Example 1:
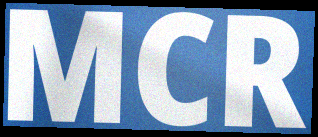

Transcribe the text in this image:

MCR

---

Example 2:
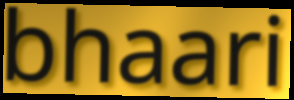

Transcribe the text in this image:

bhaari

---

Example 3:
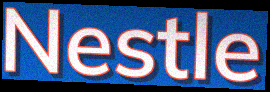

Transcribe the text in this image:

Nestle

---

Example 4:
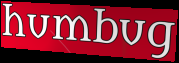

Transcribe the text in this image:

humbug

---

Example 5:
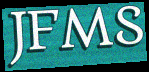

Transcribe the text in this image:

JFMS